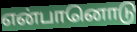
என்பானொடு